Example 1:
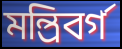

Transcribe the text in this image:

মন্ত্রিবর্গ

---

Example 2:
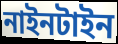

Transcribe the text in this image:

নাইনটাইন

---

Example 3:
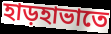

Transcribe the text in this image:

হাড়হাভাতে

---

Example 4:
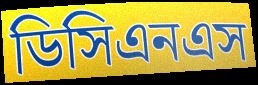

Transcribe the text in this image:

ডিসিএনএস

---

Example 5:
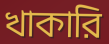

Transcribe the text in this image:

খাকারি